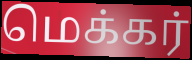
மெக்கர்